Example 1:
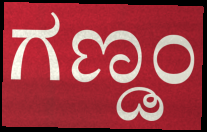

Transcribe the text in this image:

ಗಣ್ಡಂ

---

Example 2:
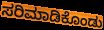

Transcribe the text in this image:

ಸರಿಮಾಡಿಕೊಂಡು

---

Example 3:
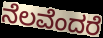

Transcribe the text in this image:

ನೆಲವೆಂದರೆ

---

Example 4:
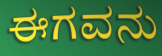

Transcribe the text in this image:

ಈಗವನು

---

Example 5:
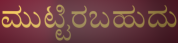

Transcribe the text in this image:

ಮುಟ್ಟಿರಬಹುದು